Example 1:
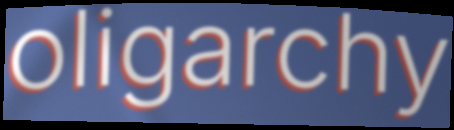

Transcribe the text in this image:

oligarchy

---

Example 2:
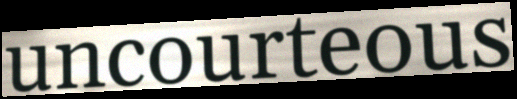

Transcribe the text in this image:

uncourteous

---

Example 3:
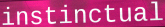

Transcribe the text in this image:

instinctual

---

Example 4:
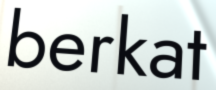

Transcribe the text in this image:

berkat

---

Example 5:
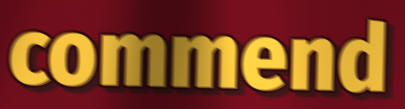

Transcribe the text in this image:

commend